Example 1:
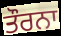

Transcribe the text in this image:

ਤੌਰਨਾ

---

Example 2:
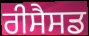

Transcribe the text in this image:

ਰੀਸੈਸਡ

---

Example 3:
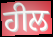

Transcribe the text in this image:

ਹੀਲ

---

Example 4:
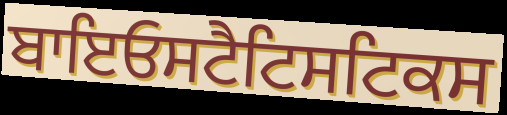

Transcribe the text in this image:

ਬਾਇਓਸਟੈਟਿਸਟਿਕਸ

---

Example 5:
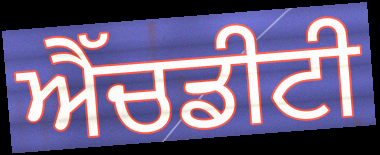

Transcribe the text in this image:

ਐੱਚਡੀਟੀ